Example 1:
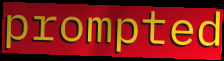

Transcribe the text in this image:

prompted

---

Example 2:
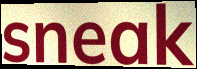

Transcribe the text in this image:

sneak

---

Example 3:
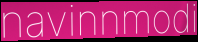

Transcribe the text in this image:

navinnmodi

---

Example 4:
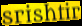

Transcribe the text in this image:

srishtir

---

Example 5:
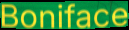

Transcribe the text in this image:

Boniface